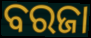
ବରଜା